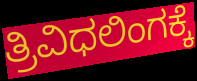
ತ್ರಿವಿಧಲಿಂಗಕ್ಕೆ